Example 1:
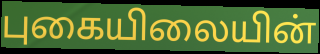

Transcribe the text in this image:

புகையிலையின்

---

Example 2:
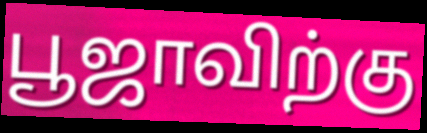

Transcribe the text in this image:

பூஜாவிற்கு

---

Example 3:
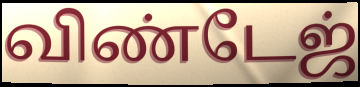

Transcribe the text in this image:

விண்டேஜ்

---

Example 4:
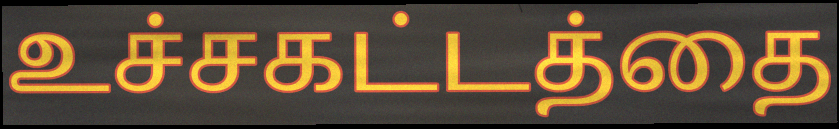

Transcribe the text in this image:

உச்சகட்டத்தை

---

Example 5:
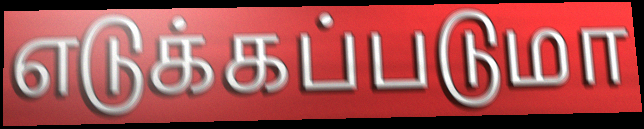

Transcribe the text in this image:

எடுக்கப்படுமா